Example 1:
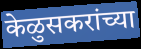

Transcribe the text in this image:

केळुसकरांच्या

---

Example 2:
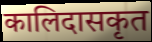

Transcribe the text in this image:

कालिदासकृत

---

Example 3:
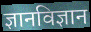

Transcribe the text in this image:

ज्ञानविज्ञान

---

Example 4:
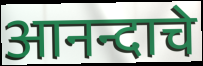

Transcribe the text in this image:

आनन्दाचे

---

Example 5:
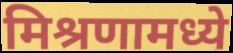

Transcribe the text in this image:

मिश्रणामध्ये